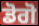
ਡੋਗੋ